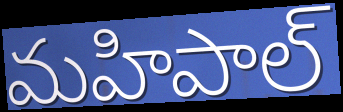
మహిపాల్